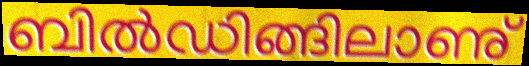
ബിൽഡിങ്ങിലാണു്